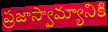
ప్రజాస్వామ్యానికి